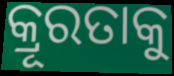
କ୍ରୂରତାକୁ